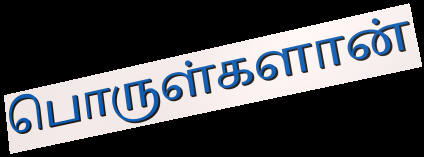
பொருள்களான்